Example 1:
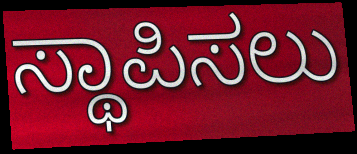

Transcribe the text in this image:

ಸ್ಥಾಪಿಸಲು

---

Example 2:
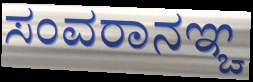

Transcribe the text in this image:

ಸಂವರಾನಞ್ಚ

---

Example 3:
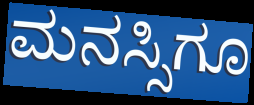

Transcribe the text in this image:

ಮನಸ್ಸಿಗೂ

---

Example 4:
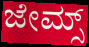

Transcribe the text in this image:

ಜೇಮ್ಸ್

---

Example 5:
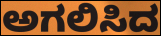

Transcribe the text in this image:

ಅಗಲಿಸಿದ